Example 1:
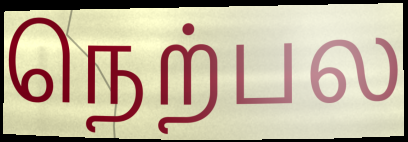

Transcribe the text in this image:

நெற்பல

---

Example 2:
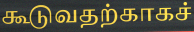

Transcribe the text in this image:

கூடுவதற்காகச்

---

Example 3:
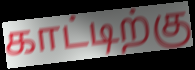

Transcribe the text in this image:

காட்டிற்கு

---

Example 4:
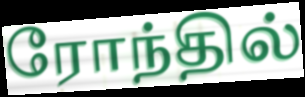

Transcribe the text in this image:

ரோந்தில்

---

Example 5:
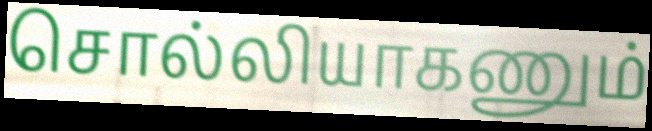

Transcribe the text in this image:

சொல்லியாகணும்